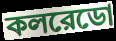
কলরেডো